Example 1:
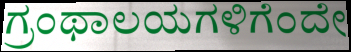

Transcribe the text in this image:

ಗ್ರಂಥಾಲಯಗಳಿಗೆಂದೇ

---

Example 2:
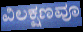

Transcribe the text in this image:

ವಿಲಕ್ಷಣವೂ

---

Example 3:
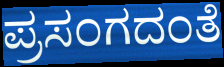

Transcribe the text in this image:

ಪ್ರಸಂಗದಂತೆ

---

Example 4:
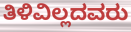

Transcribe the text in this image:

ತಿಳಿವಿಲ್ಲದವರು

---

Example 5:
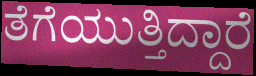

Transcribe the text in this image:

ತೆಗೆಯುತ್ತಿದ್ದಾರೆ